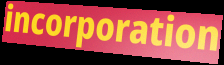
incorporation